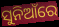
ସୁନିଆଁରେ